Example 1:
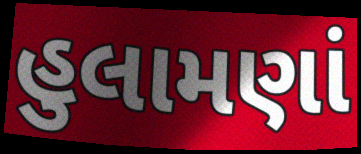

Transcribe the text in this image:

હુલામણાં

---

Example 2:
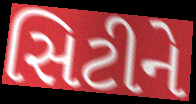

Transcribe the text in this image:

સિટીને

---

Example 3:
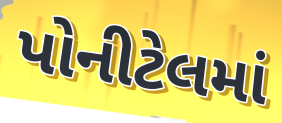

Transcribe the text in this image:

પોનીટેલમાં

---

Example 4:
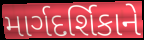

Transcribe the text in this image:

માર્ગદર્શિકાને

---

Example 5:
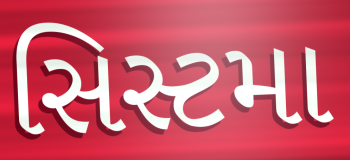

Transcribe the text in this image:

સિસ્ટમા